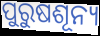
ପୁରୁଷଶୂନ୍ୟ